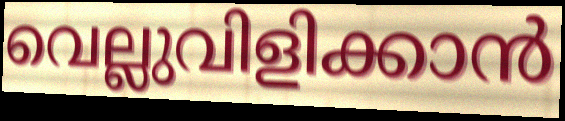
വെല്ലുവിളിക്കാൻ